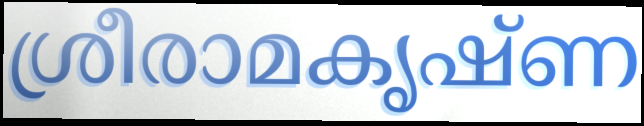
ശ്രീരാമകൃഷ്ണ